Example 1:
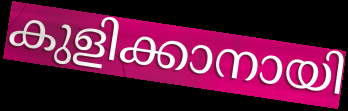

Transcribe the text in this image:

കുളിക്കാനായി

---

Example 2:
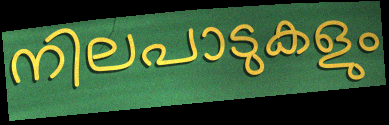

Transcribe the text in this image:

നിലപാടുകളും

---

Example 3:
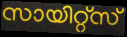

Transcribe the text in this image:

സായിറ്റ്സ്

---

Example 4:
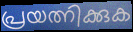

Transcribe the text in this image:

പ്രയത്നിക്കുക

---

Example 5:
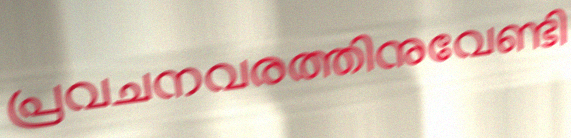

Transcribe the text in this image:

പ്രവചനവരത്തിനുവേണ്ടി